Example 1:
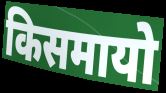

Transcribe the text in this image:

किसमायो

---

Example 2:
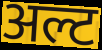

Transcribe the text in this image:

अल्ट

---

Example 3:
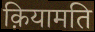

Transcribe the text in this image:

क़ियामति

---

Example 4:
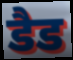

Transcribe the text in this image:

डैड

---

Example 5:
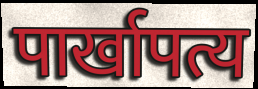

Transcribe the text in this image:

पार्खापत्य